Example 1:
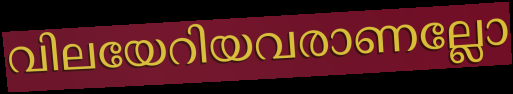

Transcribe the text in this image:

വിലയേറിയവരാണല്ലോ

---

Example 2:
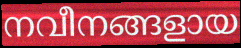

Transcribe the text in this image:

നവീനങ്ങളായ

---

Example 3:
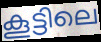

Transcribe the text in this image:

കൂട്ടിലെ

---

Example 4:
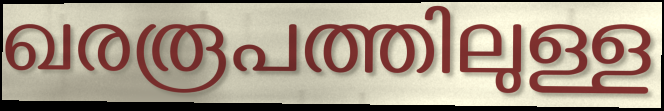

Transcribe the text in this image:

ഖരരൂപത്തിലുള്ള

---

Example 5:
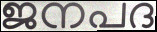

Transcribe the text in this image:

ജനപദ